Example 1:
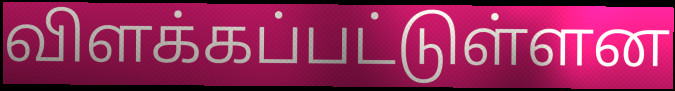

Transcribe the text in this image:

விளக்கப்பட்டுள்ளன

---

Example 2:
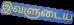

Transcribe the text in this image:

இவளுடைய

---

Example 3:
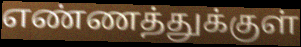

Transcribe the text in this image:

எண்ணத்துக்குள்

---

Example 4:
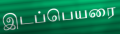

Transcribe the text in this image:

இடப்பெயரை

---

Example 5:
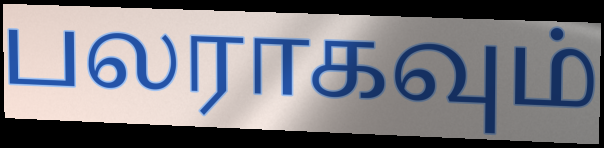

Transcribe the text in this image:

பலராகவும்